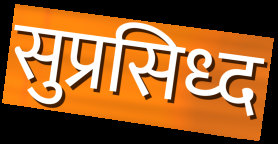
सुप्रसिध्द